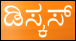
ಡಿಸ್ಕಸ್